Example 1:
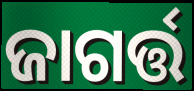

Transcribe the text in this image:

ଜାଗର୍ତ୍ତ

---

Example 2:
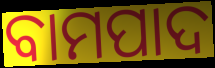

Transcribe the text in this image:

ବାମପାଦ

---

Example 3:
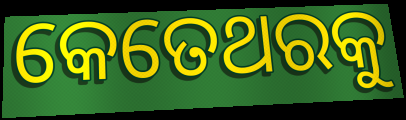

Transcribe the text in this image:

କେତେଥରକୁ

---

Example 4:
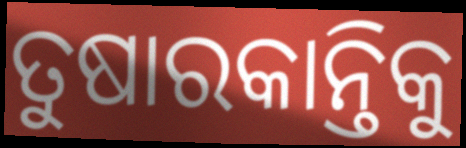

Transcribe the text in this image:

ତୁଷାରକାନ୍ତିକୁ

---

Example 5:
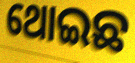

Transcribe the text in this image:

ଥୋଇଛ